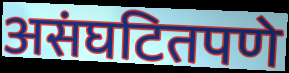
असंघटितपणे